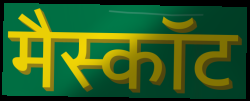
मैस्कॉट